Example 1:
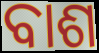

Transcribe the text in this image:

ବାଶ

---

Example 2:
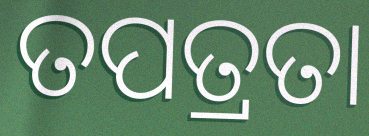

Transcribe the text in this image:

ତପତ୍ରତା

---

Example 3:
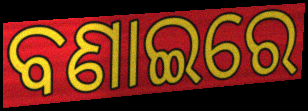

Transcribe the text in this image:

ବଣାଇରେ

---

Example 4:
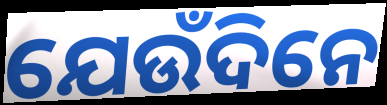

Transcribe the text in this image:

ଯେଉଁଦିନେ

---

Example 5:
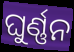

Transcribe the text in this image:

ଘୁର୍ଣ୍ଣନ